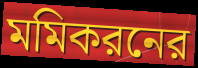
মমিকরনের